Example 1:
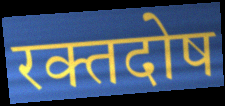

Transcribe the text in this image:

रक्‍तदोष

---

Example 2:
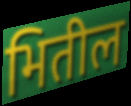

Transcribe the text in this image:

भितील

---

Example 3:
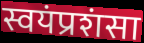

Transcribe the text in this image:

स्वयंप्रशंसा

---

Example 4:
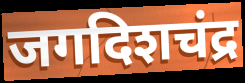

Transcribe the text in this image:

जगदिशचंद्र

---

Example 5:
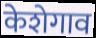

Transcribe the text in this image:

केशेगाव